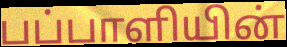
பப்பாளியின்